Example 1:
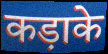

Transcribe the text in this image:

कड़ाके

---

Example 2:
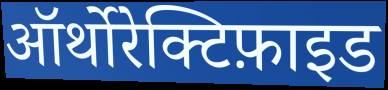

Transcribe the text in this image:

ऑर्थोरेक्टिफ़ाइड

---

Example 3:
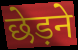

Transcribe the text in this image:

छेड़ने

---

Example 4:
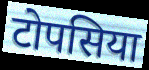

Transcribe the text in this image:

टोपसिया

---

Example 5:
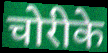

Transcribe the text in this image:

चोरीके